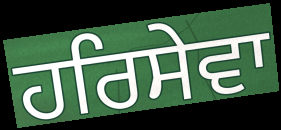
ਹਰਿਸੇਵਾ